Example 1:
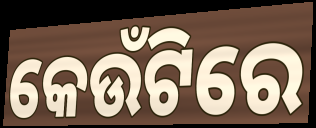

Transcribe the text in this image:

କେଉଁଟିରେ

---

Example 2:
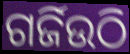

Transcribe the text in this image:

ଗର୍ଜିଉଠି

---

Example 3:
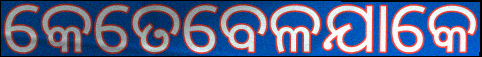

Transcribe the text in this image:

କେତେବେଳଯାକେ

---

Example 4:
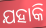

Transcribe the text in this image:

ଯହାକି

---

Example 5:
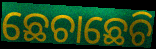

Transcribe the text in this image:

ଛେଚାଛେଚି